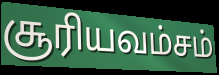
சூரியவம்சம்